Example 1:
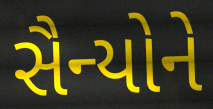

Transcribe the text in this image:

સૈન્યોને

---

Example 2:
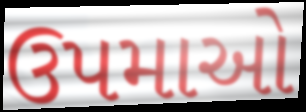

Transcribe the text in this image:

ઉપમાઓ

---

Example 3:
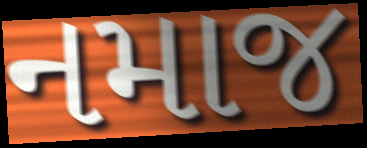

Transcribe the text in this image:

નમાજ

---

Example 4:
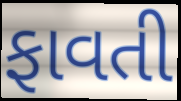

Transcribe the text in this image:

ફાવતી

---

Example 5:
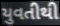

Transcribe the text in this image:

યુવતીથી